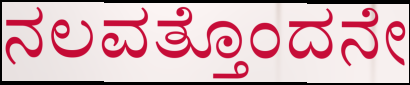
ನಲವತ್ತೊಂದನೇ